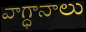
వాగ్ధానాలు